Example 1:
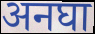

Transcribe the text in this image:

अनघा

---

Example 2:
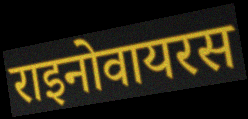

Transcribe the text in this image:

राइनोवायरस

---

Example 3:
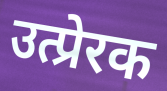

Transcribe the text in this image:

उत्प्रेरक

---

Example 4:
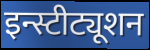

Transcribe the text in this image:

इन्स्टीट्यूशन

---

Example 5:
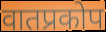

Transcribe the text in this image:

वातप्रकोप